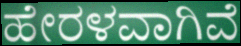
ಹೇರಳವಾಗಿವೆ